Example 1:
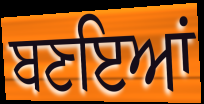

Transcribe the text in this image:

ਬਣਇਆਂ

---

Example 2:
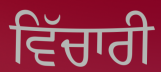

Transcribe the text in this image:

ਵਿੱਚਾਰੀ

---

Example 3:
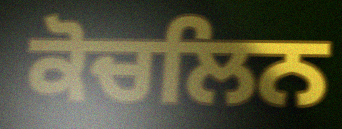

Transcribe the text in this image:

ਕੋਚਲਿਨ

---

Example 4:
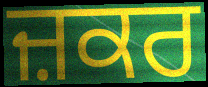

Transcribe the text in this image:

ਜ਼ਕਰ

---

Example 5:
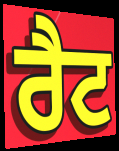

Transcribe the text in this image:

ਰੈਟ